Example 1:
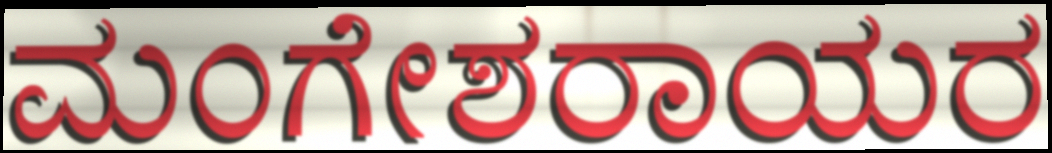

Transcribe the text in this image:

ಮಂಗೇಶರಾಯರ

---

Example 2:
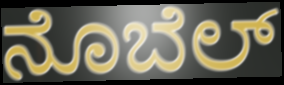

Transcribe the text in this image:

ನೊಬೆಲ್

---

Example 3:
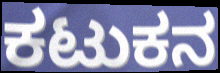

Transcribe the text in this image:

ಕಟುಕನ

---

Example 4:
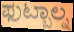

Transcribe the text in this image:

ಫುಟ್ಬಾಲ್ನ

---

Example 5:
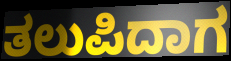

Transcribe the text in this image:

ತಲುಪಿದಾಗ